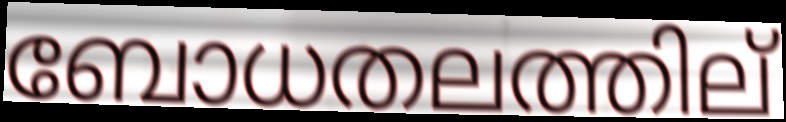
ബോധതലത്തില്